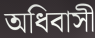
অধিবাসী